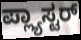
ಪ್ಲ್ಯಾಸ್ಟರ್